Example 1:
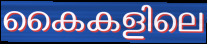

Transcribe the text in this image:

കൈകളിലെ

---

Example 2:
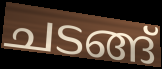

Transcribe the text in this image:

ചടങ്ങ്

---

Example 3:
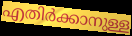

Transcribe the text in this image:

എതിർക്കാനുള്ള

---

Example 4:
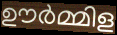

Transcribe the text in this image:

ഊർമ്മിള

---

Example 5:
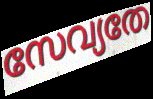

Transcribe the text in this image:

സേവ്യതേ